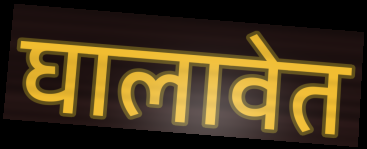
घालावेत